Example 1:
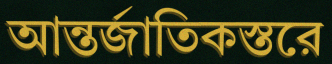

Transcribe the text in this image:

আন্তর্জাতিকস্তরে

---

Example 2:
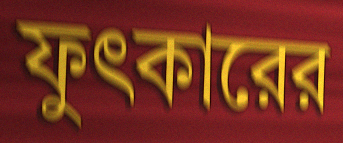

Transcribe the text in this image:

ফুৎকারের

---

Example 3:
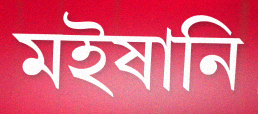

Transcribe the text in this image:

মইষানি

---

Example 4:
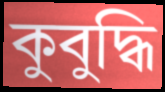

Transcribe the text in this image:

কুবুদ্ধি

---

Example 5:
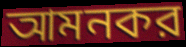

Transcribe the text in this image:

আমনকর